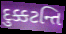
દુક્કટન્તિ